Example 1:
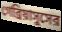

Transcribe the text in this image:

গেব্রিয়াসুসের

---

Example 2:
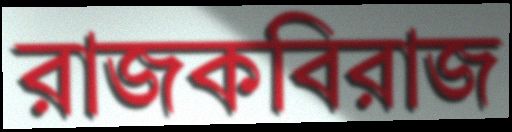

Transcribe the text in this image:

রাজকবিরাজ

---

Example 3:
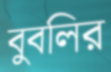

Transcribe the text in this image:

বুবলির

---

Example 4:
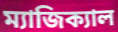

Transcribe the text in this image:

ম্যাজিক্যাল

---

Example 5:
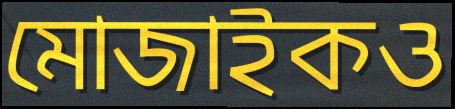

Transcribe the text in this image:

মোজাইকও